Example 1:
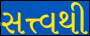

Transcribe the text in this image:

સત્ત્વથી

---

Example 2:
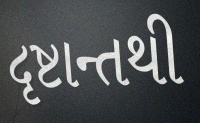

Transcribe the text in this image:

દૃષ્ટાન્તથી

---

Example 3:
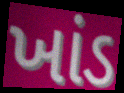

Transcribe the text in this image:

ખાંડ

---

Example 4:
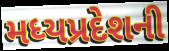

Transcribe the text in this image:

મધ્યપ્રદેશની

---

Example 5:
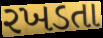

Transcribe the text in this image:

રખડતા